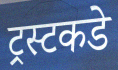
ट्रस्टकडे